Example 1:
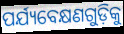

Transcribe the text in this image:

ପର୍ଯ୍ୟବେକ୍ଷଣଗୁଡ଼ିକୁ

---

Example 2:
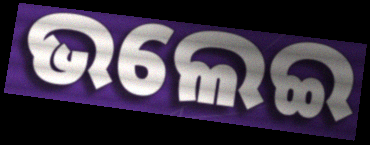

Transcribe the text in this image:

ଭଲେଇ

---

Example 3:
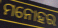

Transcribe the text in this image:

ମନୋହର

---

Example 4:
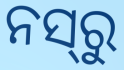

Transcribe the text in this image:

ନସ୍‍ରୁ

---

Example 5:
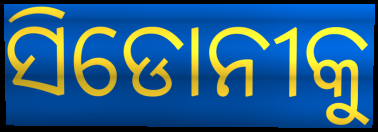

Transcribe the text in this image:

ସିଡୋନୀକୁ